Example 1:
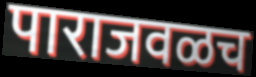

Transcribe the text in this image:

पाराजवळच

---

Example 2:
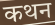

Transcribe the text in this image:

कथन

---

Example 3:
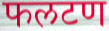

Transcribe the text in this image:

फलटण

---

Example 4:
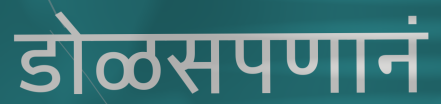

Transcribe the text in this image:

डोळसपणानं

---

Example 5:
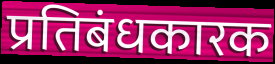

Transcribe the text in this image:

प्रतिबंधकारक